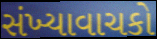
સંખ્યાવાચકો